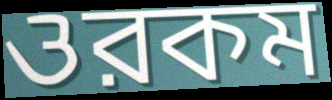
ওরকম